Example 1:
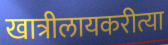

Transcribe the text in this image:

खात्रीलायकरीत्या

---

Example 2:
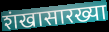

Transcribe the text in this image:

शंखासारख्या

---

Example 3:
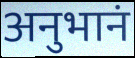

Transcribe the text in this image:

अनुभानं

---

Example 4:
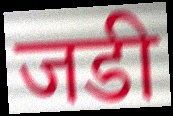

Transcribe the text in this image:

जडी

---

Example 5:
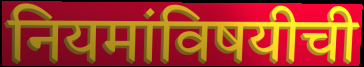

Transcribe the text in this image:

नियमांविषयीची